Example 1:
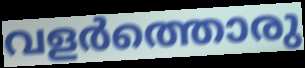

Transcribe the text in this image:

വളർത്തൊരു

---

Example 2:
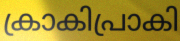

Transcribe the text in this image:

ക്രാകിപ്രാകി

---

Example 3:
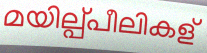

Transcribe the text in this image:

മയില്പ്പീലികള്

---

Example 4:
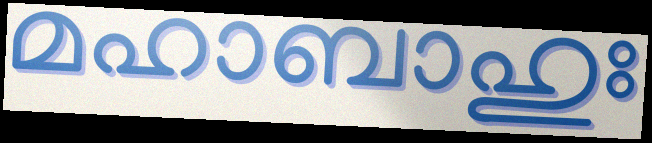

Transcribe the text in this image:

മഹാബാഹുഃ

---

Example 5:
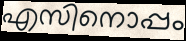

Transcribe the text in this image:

എസിനൊപ്പം